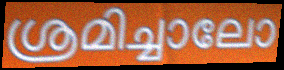
ശ്രമിച്ചാലോ